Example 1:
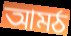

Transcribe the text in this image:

আমঠ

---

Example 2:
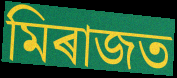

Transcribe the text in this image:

মিৰাজত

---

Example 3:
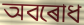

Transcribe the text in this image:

অবৰোধ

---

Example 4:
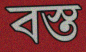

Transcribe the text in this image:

বস্ত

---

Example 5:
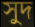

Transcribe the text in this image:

সুদ